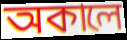
অকালে